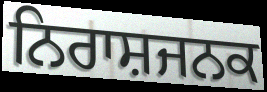
ਨਿਰਾਸ਼ਜਨਕ